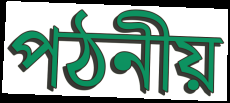
পঠনীয়